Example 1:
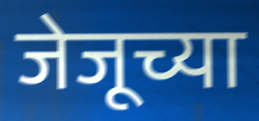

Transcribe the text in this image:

जेजूच्या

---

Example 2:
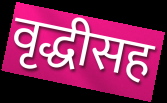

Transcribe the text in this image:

वृद्धीसह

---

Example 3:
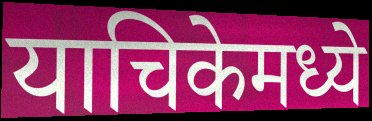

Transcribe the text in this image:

याचिकेमध्ये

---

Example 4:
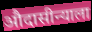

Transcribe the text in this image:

औदासीन्याला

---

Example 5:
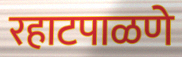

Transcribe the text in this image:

रहाटपाळणे